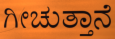
ಗೀಚುತ್ತಾನೆ